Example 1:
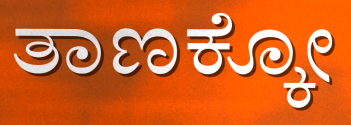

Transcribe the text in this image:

ತಾಣಕ್ಕೋ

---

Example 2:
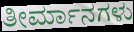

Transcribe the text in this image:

ತೀರ್ಮಾನಗಳು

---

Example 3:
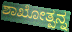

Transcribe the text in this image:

ಶಾಖೋತ್ಪನ್ನ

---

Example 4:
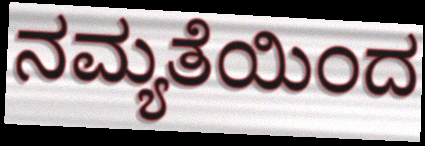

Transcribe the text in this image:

ನಮ್ಯತೆಯಿಂದ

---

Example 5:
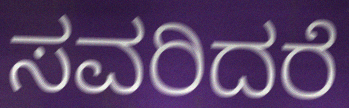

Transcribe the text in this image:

ಸವರಿದರೆ